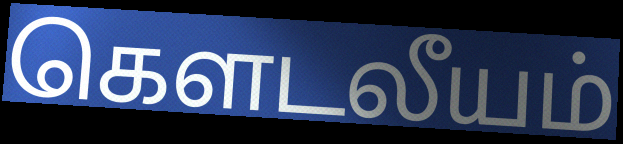
கெளடலீயம்